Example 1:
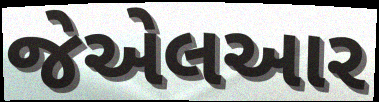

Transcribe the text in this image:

જેએલઆર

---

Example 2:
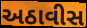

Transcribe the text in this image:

અઠાવીસ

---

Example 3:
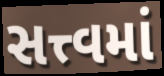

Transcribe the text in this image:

સત્ત્વમાં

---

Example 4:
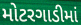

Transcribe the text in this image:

મોટરગાડીમાં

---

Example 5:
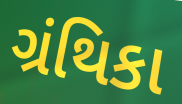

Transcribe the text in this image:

ગ્રંથિકા